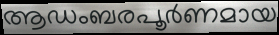
ആഡംബരപൂർണമായ